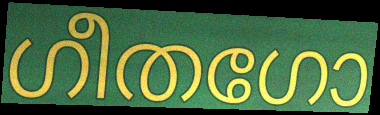
ഗീതഗോ